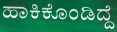
ಹಾಕಿಕೊಂಡಿದ್ದೆ